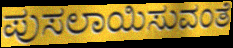
ಪುಸಲಾಯಿಸುವಂತೆ